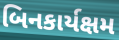
બિનકાર્યક્ષમ